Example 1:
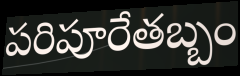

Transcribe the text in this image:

పరిపూరేతబ్బం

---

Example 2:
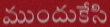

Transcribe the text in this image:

ముందుకేసి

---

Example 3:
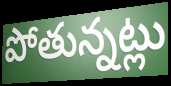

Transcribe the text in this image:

పోతున్నట్లు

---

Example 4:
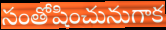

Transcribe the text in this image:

సంతోషించునుగాక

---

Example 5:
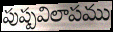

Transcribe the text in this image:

పుష్పవిలాపము